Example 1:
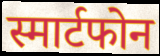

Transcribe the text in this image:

स्मार्टफोन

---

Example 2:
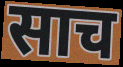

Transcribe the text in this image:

साच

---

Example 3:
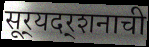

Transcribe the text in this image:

सूर्यदर्शनाची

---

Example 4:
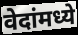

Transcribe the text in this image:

वेदांमध्ये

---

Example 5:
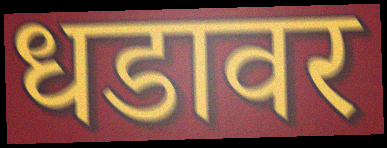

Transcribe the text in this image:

धडावर